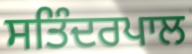
ਸਤਿੰਦਰਪਾਲ